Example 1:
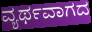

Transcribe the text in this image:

ವ್ಯರ್ಥವಾಗದ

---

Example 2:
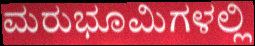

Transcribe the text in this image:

ಮರುಭೂಮಿಗಳಲ್ಲಿ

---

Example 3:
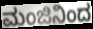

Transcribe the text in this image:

ಮಂಜಿನಿಂದ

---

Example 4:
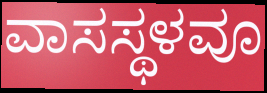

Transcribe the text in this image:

ವಾಸಸ್ಥಳವೂ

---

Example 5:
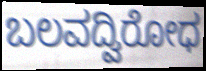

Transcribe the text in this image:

ಬಲವದ್ವಿರೋಧ